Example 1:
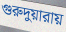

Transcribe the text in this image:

গুরুদুয়ারায়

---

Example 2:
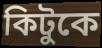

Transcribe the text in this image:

কিটুকে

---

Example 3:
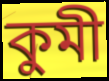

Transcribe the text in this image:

কুমী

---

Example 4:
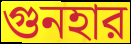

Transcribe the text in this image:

গুনহার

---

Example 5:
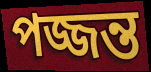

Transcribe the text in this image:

পজ্জন্ত